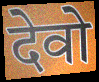
देवो